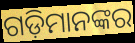
ଗଡ଼ିମାନଙ୍କର